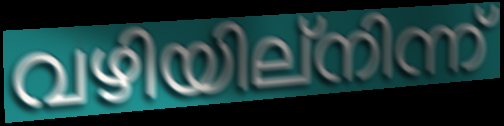
വഴിയില്നിന്ന്